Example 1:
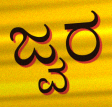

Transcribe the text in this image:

ಜ್ವರ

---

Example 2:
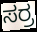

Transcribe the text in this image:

ಸರ್ರ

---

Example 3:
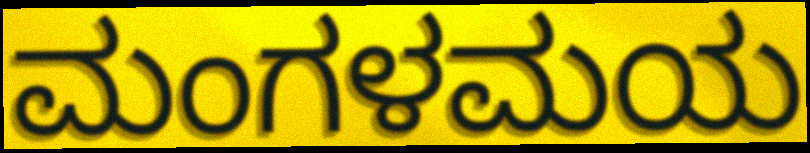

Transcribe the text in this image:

ಮಂಗಳಮಯ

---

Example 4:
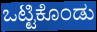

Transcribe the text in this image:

ಒಟ್ಟಿಕೊಂಡು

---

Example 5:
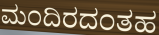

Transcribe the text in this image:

ಮಂದಿರದಂತಹ